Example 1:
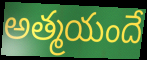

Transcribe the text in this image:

అత్మయందే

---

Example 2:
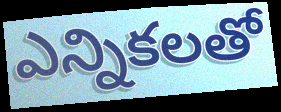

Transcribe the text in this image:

ఎన్నికలతో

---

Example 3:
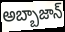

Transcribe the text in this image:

అబ్బాజాన్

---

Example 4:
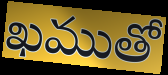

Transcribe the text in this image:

ఖముతో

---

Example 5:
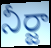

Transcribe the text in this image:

నీర్జా